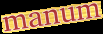
manum